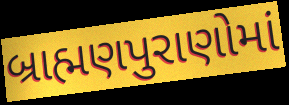
બ્રાહ્મણપુરાણોમાં